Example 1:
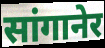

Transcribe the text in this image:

सांगानेर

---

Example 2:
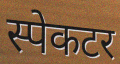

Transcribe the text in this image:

स्पेकटर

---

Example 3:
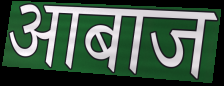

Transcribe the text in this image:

आबाज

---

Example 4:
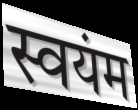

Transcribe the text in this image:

स्वयंम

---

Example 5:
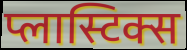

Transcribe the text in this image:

प्लास्टिक्स